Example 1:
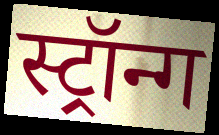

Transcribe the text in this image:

स्ट्रॉन्ग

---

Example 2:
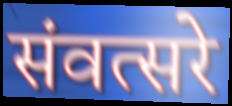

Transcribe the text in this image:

संवत्सरे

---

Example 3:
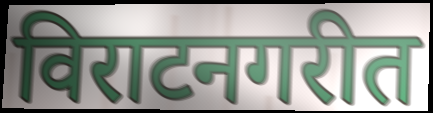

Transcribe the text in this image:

विराटनगरीत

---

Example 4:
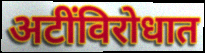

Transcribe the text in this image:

अटींविरोधात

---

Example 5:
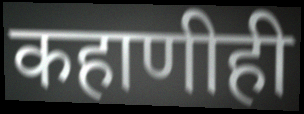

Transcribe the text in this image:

कहाणीही